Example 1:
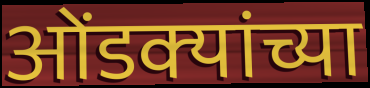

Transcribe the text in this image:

ओंडक्यांच्या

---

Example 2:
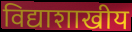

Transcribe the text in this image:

विद्याशाखीय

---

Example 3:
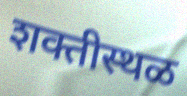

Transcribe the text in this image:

शक्तीस्थळ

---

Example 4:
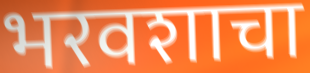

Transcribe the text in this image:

भरवशाचा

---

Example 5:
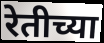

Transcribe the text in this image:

रेतीच्या